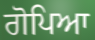
ਗੋਪਿਆ